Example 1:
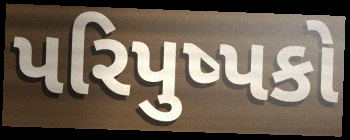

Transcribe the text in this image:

પરિપુષ્પકો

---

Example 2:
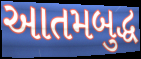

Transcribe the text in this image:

આતમબુદ્ધ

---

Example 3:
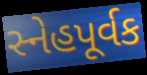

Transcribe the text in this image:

સ્નેહપૂર્વક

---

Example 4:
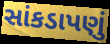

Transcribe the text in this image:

સાંકડાપણું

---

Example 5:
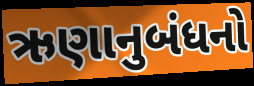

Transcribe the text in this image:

ઋણાનુબંધનો